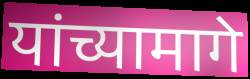
यांच्यामागे